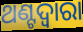
ଥଣ୍ଟଦ୍ୱାରା